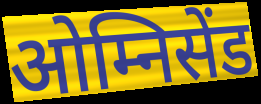
ओम्निसेंड